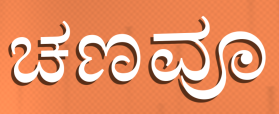
ಚಣವೂ